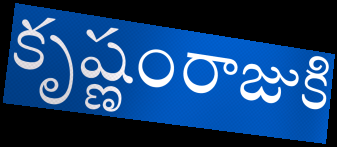
కృష్ణంరాజుకి